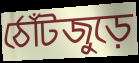
ঠোঁটজুড়ে